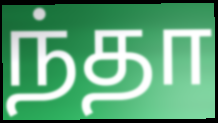
ந்தா